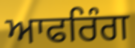
ਆਫਰਿੰਗ